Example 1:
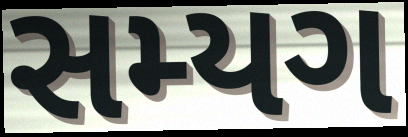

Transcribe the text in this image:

સમ્યગ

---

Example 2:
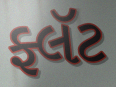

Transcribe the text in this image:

ફ્લૅટ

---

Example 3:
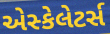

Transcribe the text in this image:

એસ્કેલેટર્સ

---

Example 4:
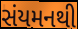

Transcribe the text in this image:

સંયમનથી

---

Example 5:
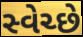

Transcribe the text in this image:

સ્વેચ્છે